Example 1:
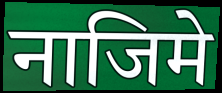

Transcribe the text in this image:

नाजिमे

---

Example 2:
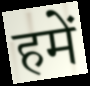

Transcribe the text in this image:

हमें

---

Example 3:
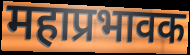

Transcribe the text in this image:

महाप्रभावक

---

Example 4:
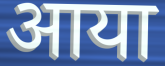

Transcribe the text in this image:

आया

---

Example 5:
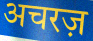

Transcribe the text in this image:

अचरज़